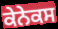
ਕੇਨੇਕਸ